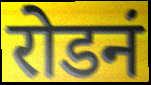
रोडनं